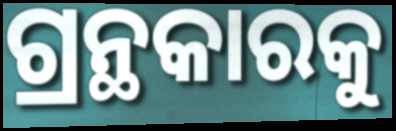
ଗ୍ରନ୍ଥକାରକୁ